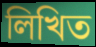
লিখিত